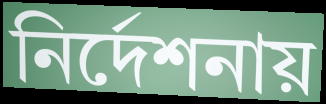
নির্দেশনায়